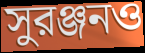
সুরঞ্জনও